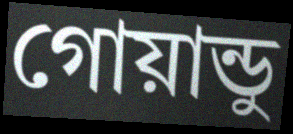
গোয়ান্ডু